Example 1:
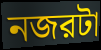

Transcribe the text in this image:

নজরটা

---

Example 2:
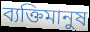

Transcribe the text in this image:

ব্যক্তিমানুষ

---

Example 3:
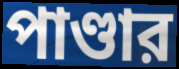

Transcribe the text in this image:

পাণ্ডার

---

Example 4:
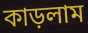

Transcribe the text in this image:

কাড়লাম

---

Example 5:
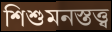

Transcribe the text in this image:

শিশুমনস্তত্ত্ব